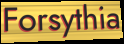
Forsythia